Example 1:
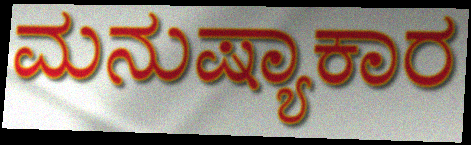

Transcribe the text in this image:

ಮನುಷ್ಯಾಕಾರ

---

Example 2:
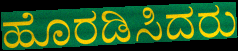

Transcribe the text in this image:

ಹೊರಡಿಸಿದರು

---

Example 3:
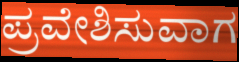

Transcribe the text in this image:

ಪ್ರವೇಶಿಸುವಾಗ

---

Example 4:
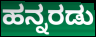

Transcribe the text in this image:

ಹನ್ನರಡು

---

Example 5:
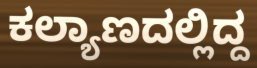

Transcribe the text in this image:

ಕಲ್ಯಾಣದಲ್ಲಿದ್ದ